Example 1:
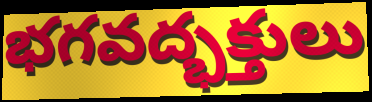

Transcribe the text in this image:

భగవద్భక్తులు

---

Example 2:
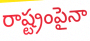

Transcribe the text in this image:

రాష్ట్రంపైనా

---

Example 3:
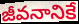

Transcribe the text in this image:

జీవనానికే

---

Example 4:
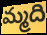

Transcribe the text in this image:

మ్మది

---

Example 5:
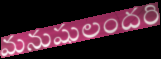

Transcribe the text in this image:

మనుషులందరి